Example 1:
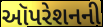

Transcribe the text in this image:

ઑપરેશનની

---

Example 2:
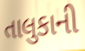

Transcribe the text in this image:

તાલુકાની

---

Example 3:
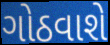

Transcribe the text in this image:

ગોઠવાશે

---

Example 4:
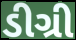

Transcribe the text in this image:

ડીગ્રી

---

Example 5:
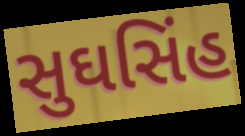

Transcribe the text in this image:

સુઘસિંહ